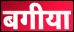
बगीया